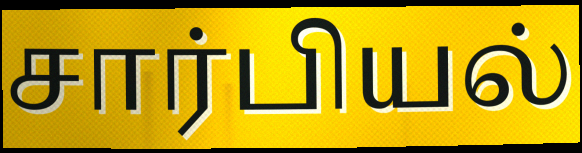
சார்பியல்